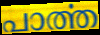
പാൎത്ത